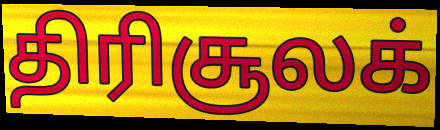
திரிசூலக்